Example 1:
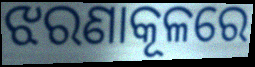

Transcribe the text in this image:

ଝରଣାକୂଳରେ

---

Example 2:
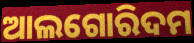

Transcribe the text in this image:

ଆଲଗୋରିଦମ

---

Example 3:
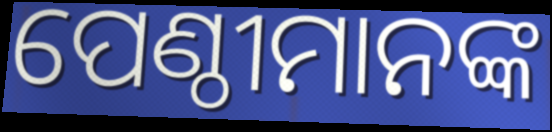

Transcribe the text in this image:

ପେଣ୍ଠୀମାନଙ୍କ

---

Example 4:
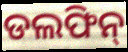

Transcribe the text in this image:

ଡଲଫିନ୍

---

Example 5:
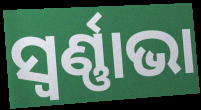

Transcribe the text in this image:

ସ୍ୱର୍ଣ୍ଣାଭା